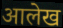
आलेख